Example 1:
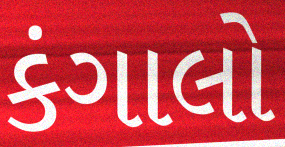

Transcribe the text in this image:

કંગાલો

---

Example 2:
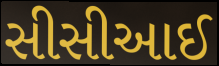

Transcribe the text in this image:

સીસીઆઈ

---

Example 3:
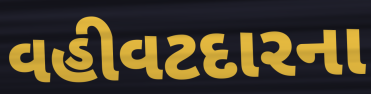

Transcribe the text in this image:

વહીવટદારના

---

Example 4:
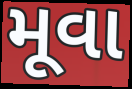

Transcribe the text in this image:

મૂવા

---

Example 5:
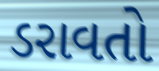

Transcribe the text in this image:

ડરાવતો